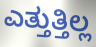
ಎತ್ತುತ್ತಿಲ್ಲ